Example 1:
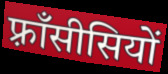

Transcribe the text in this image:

फ़्राँसीसियों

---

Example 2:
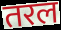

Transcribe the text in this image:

तरल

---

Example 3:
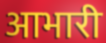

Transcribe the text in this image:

आभारी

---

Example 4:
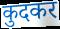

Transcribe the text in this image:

कुदकर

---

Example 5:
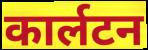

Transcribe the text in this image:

कार्लटन